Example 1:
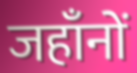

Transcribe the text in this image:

जहाँनों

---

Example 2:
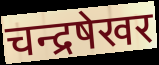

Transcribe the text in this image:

चन्द्रषेखर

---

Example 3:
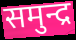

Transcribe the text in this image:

समुन्द्र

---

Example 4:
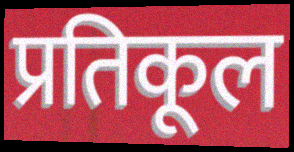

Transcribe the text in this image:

प्रतिकूल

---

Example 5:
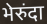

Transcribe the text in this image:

भेरुंदा